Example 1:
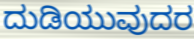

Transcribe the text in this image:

ದುಡಿಯುವುದರ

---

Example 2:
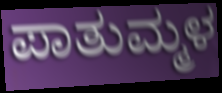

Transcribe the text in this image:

ಪಾತುಮ್ಮಳ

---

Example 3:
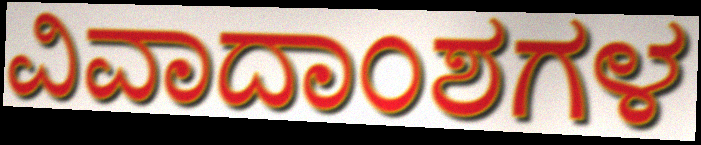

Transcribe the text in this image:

ವಿವಾದಾಂಶಗಳ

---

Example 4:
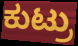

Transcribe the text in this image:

ಕುಟ್ರು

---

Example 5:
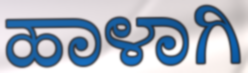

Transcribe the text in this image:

ಹಾಳಾಗಿ